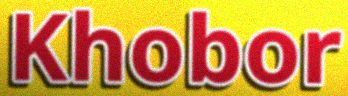
Khobor